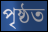
পৃষ্ঠত